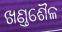
ଖଣ୍ଡଶୈଳ